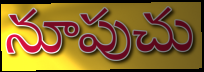
నూపుచు